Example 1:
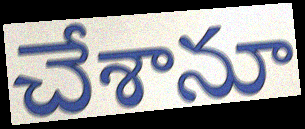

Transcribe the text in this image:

చేశానూ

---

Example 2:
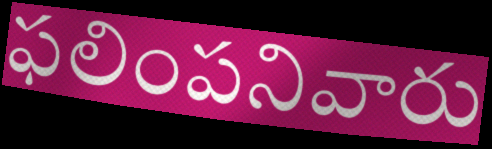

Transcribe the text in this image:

ఫలింపనివారు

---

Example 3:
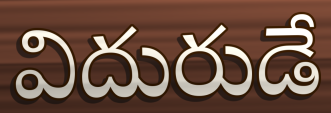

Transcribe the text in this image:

విదురుడే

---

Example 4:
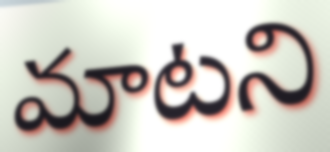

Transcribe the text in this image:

మాటని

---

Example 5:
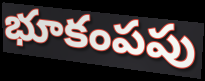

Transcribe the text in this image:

భూకంపపు